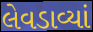
લેવડાવ્યાં